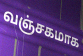
வஞ்சகமாக